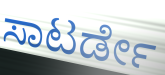
ಸಾಟರ್ಡೇ